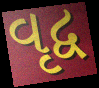
વૃદ્વ